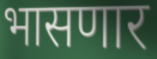
भासणार